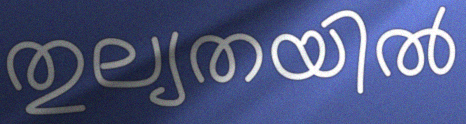
തുല്യതയിൽ